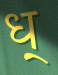
ध्